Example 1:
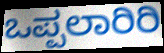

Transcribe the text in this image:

ಒಪ್ಪಲಾರಿರಿ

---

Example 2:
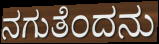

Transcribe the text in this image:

ನಗುತೆಂದನು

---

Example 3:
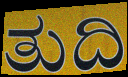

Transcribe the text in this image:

ತುದಿ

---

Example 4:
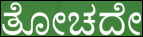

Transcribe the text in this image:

ತೋಚದೇ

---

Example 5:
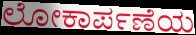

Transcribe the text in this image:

ಲೋಕಾರ್ಪಣೆಯ